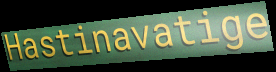
Hastinavatige